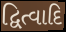
દ્વિત્વાદિ